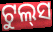
ଟୁଲ୍‌ସ